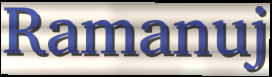
Ramanuj